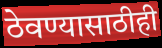
ठेवण्यासाठीही